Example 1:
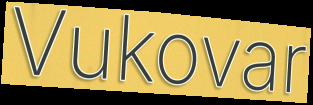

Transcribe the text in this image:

Vukovar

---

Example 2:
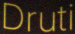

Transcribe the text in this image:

Druti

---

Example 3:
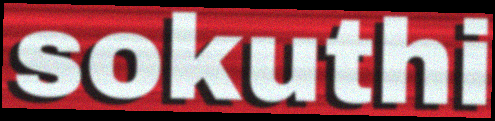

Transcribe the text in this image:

sokuthi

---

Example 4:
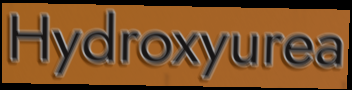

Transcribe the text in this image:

Hydroxyurea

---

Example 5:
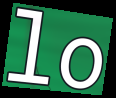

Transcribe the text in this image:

lo